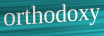
orthodoxy